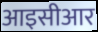
आइसीआर